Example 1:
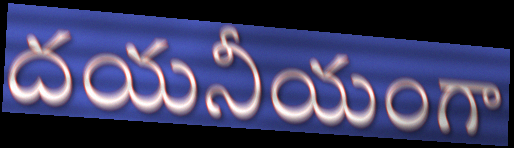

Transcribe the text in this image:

దయనీయంగా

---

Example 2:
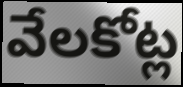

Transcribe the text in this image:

వేలకోట్ల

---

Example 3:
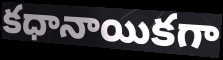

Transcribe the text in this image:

కధానాయికగా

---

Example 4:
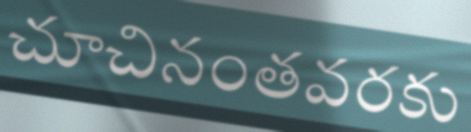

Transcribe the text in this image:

చూచినంతవరకు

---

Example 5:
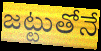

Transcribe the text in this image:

జట్టుతోనే